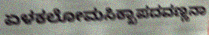
ಏಳಕಲೋಮಸಿಕ್ಖಾಪದವಣ್ಣನಾ